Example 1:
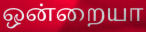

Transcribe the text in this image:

ஒன்றையா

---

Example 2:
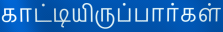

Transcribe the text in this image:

காட்டியிருப்பார்கள்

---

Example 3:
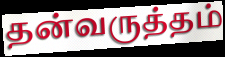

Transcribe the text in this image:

தன்வருத்தம்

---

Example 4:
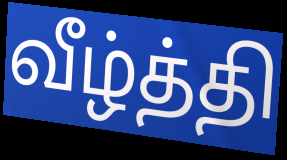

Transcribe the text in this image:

வீழ்த்தி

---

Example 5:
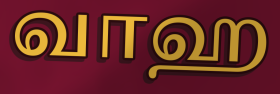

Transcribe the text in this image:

வாஹ